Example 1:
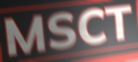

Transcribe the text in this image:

MSCT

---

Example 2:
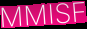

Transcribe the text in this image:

MMISF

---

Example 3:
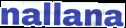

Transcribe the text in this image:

nallana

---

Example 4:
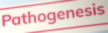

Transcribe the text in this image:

Pathogenesis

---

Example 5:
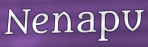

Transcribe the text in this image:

Nenapu